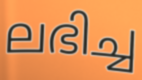
ലഭിച്ച